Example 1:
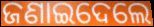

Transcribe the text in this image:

ଜଣାଇଦେଲେ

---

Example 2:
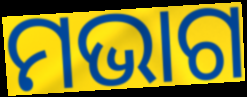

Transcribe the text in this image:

ମଭାଗ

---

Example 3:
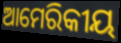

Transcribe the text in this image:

ଆମେରିକୀୟ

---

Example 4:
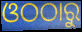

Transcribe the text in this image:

ଓଠଠାରୁ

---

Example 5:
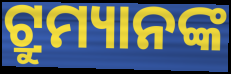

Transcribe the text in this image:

ଟ୍ରୁମ୍ୟାନଙ୍କ